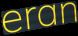
eran